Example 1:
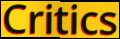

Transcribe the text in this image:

Critics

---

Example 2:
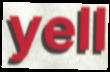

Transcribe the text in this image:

yell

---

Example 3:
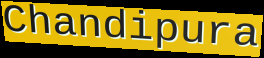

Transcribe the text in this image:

Chandipura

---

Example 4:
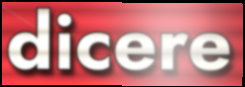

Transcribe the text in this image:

dicere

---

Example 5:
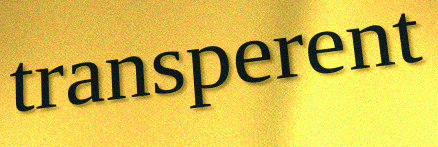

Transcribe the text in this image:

transperent